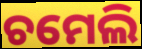
ଚମେଲି